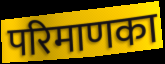
परिमाणका